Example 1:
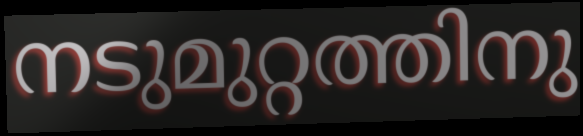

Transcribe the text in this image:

നടുമുറ്റത്തിനു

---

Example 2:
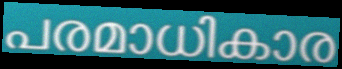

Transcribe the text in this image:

പരമാധികാര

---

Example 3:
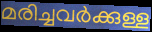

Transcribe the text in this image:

മരിച്ചവർക്കുള്ള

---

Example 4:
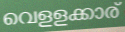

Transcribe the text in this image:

വെളളക്കാര്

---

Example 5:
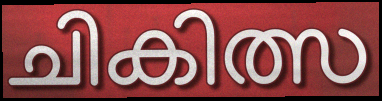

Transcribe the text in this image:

ചികിത്സ